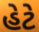
હેટે